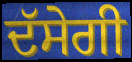
ਦੱਸੇਗੀ